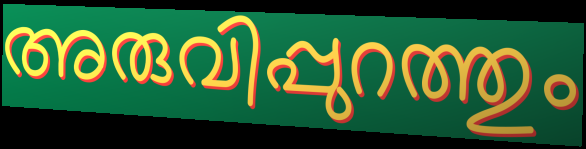
അരുവിപ്പുറത്തും